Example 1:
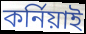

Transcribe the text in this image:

কর্নিয়াই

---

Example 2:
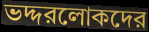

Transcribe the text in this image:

ভদ্দরলোকদের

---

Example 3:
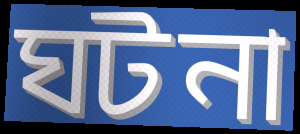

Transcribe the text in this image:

ঘটনা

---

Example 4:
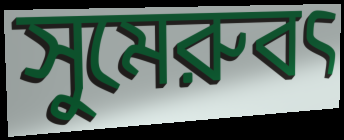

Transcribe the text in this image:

সুমেরুবৎ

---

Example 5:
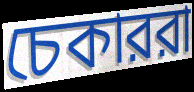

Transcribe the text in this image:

চেকাররা